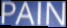
PAIN